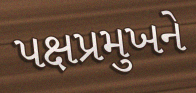
પક્ષપ્રમુખને